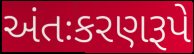
અંતઃકરણરૂપે